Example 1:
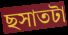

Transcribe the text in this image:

ছসাতটা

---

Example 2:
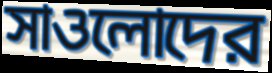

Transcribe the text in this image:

সাওলোদের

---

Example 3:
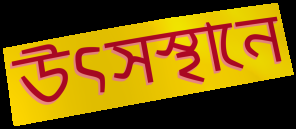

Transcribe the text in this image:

উৎসস্থানে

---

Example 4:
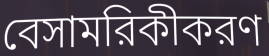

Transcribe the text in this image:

বেসামরিকীকরণ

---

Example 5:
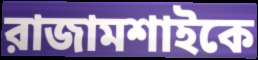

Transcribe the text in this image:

রাজামশাইকে